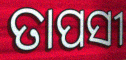
ତାପସୀ